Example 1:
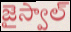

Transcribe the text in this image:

జైస్వాల్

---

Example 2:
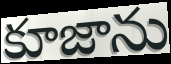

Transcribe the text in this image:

కూజాను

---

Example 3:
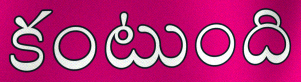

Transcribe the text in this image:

కంటుంది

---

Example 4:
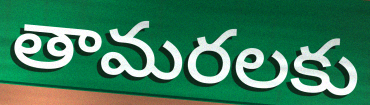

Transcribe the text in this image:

తామరలకు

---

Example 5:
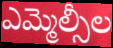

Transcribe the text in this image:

ఎమ్మెల్సీల